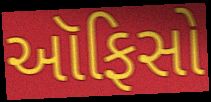
ઑફિસો